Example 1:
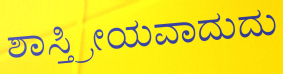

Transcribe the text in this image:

ಶಾಸ್ತ್ರೀಯವಾದುದು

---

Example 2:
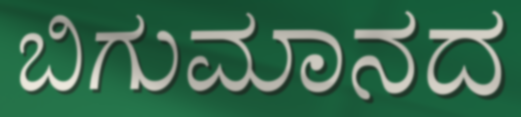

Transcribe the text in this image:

ಬಿಗುಮಾನದ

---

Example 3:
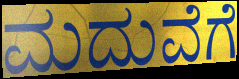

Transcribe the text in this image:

ಮದುವೆಗೆ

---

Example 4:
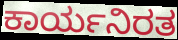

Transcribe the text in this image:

ಕಾರ್ಯನಿರತ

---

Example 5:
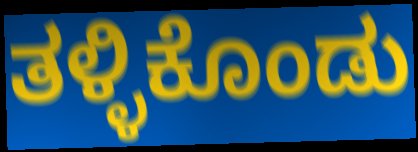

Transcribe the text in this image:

ತಳ್ಳಿಕೊಂಡು